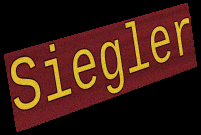
Siegler